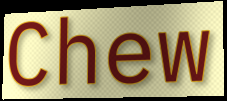
Chew